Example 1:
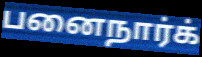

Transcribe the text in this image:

பனைநார்க்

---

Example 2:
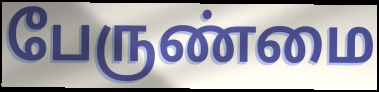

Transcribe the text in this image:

பேருண்மை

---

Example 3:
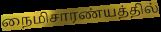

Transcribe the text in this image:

நைமிசாரண்யத்தில்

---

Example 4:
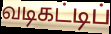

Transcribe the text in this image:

வடிகட்டிப்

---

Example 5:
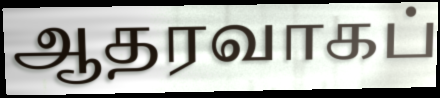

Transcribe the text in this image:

ஆதரவாகப்